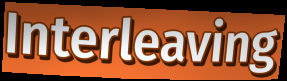
Interleaving